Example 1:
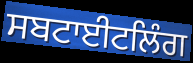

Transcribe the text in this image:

ਸਬਟਾਈਟਲਿੰਗ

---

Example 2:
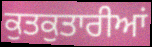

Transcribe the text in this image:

ਕੁਤਕੁਤਾਰੀਆਂ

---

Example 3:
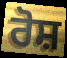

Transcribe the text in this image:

ਰੋਸ਼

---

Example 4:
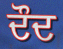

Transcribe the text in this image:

ਦੌਦ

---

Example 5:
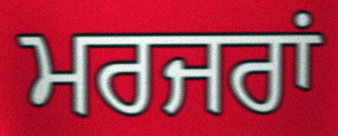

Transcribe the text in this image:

ਮਰਜਰਾਂ